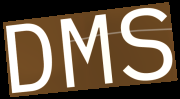
DMS